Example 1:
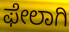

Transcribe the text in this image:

ಫೇಲಾಗಿ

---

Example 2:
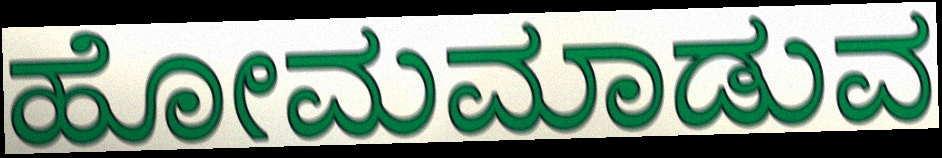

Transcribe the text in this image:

ಹೋಮಮಾಡುವ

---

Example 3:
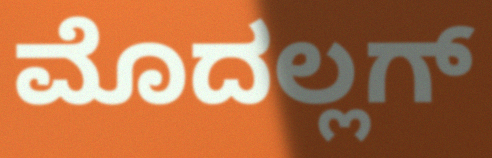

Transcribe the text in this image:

ಮೊದಲ್ಲಗ್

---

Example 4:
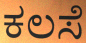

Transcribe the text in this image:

ಕಲಸೆ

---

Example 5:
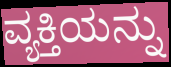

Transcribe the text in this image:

ವ್ಯಕ್ತಿಯನ್ನು